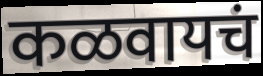
कळवायचं